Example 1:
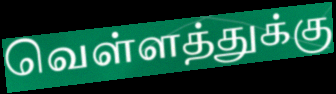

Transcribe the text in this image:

வெள்ளத்துக்கு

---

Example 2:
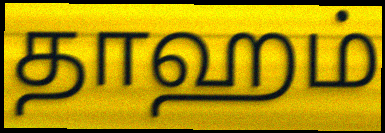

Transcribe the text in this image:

தாஹம்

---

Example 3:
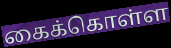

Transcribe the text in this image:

கைக்கொள்ள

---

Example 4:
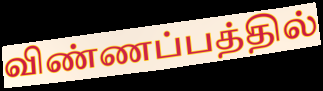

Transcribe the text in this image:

விண்ணப்பத்தில்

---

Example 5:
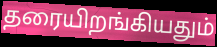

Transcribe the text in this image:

தரையிறங்கியதும்